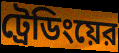
ট্রেডিংয়ের